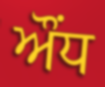
ਔਂਧ